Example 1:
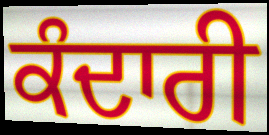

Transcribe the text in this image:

ਕੰਦਾਰੀ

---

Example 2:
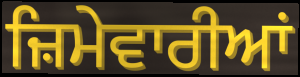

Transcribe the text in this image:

ਜ਼ਿਮੇਵਾਰੀਆਂ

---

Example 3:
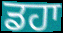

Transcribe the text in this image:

ਡਹਾ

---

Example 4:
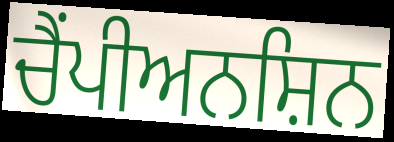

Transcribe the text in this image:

ਚੈਂਪੀਅਨਸ਼ਿਨ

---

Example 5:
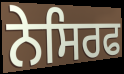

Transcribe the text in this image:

ਨੇਸਿਰਫ